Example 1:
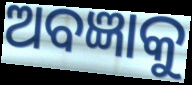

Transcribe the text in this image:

ଅବଜ୍ଞାକୁ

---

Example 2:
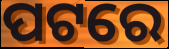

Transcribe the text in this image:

ପଟରେ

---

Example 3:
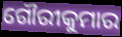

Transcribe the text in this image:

ଗୌରୀକୁମାର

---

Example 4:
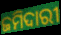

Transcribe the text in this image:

ଜମିଦାରୀ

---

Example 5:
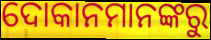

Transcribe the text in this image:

ଦୋକାନମାନଙ୍କରୁ